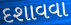
દશાવવા